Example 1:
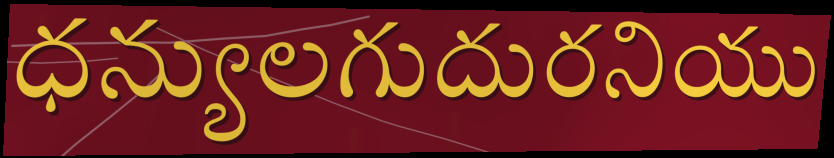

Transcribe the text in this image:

ధన్యులగుదురనియు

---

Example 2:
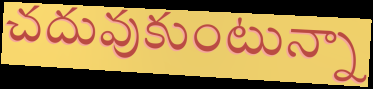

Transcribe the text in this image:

చదువుకుంటున్నా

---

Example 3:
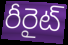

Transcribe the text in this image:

రీరైట్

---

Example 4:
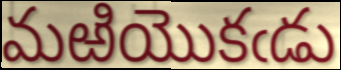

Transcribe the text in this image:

మఱియొకఁడు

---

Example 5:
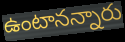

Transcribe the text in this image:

ఉంటానన్నారు